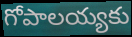
గోపాలయ్యకు